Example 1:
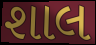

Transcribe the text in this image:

શાલ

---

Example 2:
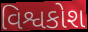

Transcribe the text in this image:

વિશ્વકોશ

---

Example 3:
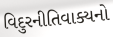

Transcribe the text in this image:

વિદુરનીતિવાક્યનો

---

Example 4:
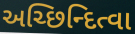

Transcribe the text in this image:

અચ્છિન્દિત્વા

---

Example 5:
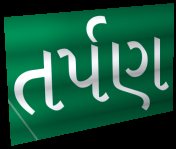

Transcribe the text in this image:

તર્પણ